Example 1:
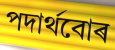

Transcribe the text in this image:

পদাৰ্থবোৰ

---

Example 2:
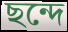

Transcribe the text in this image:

ছন্দে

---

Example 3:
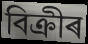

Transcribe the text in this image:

বিক্ৰীৰ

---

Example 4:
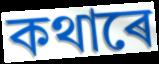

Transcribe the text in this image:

কথাৰে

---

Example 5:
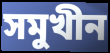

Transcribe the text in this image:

সমুখীন